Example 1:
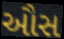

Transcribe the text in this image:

ઔસ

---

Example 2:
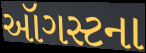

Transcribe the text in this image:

ઑગસ્ટના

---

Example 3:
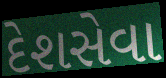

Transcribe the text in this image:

દેશસેવા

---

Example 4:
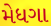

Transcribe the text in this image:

મેધગા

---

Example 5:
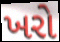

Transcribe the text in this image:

ખરો